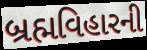
બ્રહ્મવિહારની